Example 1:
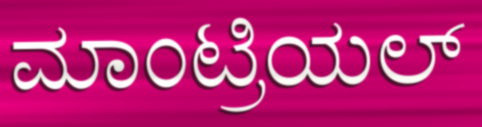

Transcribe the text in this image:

ಮಾಂಟ್ರಿಯಲ್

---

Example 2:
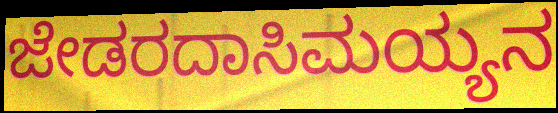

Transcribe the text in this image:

ಜೇಡರದಾಸಿಮಯ್ಯನ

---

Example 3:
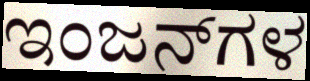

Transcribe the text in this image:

ಇಂಜನ್‌ಗಳ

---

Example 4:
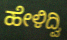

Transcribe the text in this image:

ಹೇಳಿದ್ವಿ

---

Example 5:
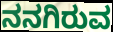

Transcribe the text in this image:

ನನಗಿರುವ